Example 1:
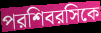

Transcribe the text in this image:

পরশিবরসিকে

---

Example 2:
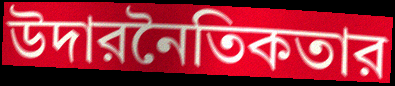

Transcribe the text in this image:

উদারনৈতিকতার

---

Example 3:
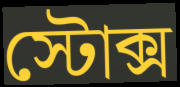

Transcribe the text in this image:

স্টোক্স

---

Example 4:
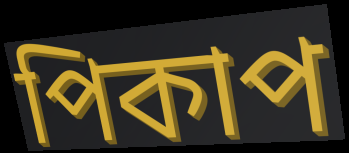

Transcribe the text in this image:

পিকাপ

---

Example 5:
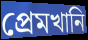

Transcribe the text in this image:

প্রেমখানি